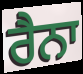
ਰੈਨਾ